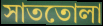
সাততোলা